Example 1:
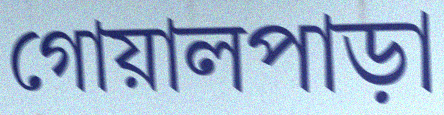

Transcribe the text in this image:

গোয়ালপাড়া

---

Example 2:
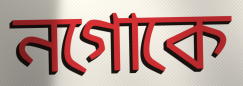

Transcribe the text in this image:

নগোকে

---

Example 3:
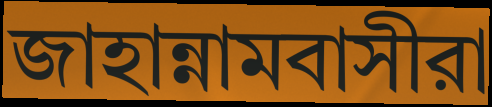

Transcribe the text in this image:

জাহান্নামবাসীরা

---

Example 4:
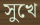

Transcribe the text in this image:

সুখে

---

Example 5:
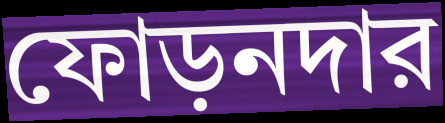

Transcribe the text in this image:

ফোড়নদার